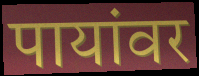
पायांवर